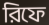
রিফে